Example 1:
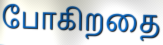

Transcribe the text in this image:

போகிறதை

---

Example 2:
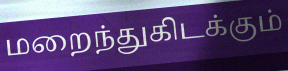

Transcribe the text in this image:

மறைந்துகிடக்கும்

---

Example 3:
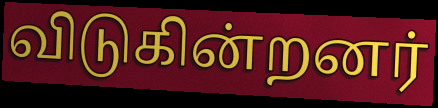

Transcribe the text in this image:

விடுகின்றனர்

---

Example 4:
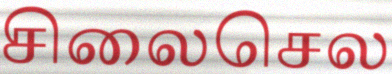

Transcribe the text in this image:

சிலைசெல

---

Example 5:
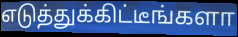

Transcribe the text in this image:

எடுத்துக்கிட்டீங்களா